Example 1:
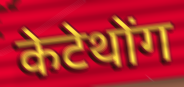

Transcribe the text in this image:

केटेथोंग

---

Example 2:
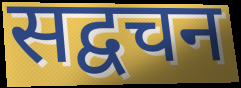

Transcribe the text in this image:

सद्वचन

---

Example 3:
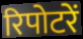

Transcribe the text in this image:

रिपोटरें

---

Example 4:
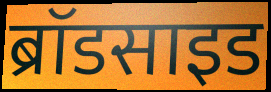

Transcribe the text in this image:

ब्रॉडसाइड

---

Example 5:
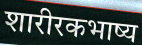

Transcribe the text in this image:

शारीरकभाष्य